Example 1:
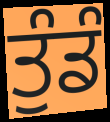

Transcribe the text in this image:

ਤੁੰਡੰ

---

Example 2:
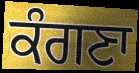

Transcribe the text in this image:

ਕੰਗਣਾ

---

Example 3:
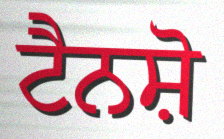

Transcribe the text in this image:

ਟੈਨਸ਼ੋ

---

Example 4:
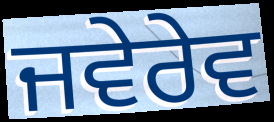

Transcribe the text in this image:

ਜਵੇਰੇਵ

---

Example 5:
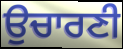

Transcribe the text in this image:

ਉਚਾਰਣੀ